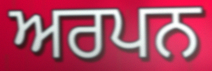
ਅਰਪਨ